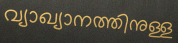
വ്യാഖ്യാനത്തിനുള്ള